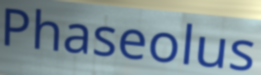
Phaseolus